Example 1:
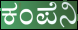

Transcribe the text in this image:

ಕಂಪೆನಿ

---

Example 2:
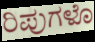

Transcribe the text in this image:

ರಿಪುಗಳೊ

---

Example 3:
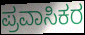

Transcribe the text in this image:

ಪ್ರವಾಸಿಕರ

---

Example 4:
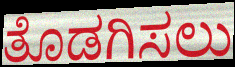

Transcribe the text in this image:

ತೊಡಗಿಸಲು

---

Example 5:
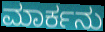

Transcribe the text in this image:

ಮಾರ್ಕನು